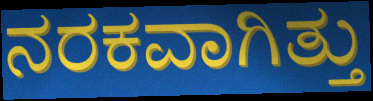
ನರಕವಾಗಿತ್ತು